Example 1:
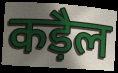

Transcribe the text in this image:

कड़ैल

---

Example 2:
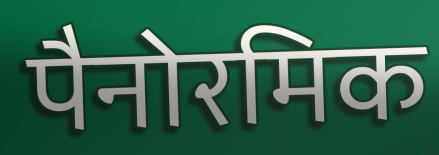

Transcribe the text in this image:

पैनोरमिक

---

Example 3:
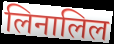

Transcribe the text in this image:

लिनालिल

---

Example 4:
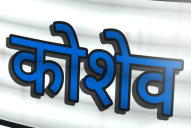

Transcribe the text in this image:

कोशेव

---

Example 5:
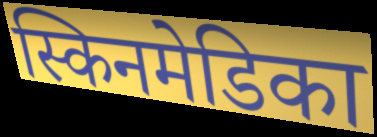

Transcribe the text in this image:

स्किनमेडिका